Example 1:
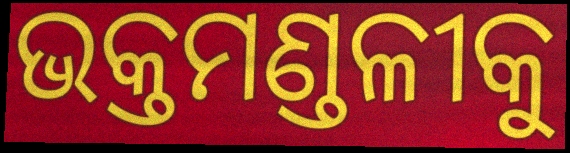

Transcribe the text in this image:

ଭକ୍ତମଣ୍ଡଳୀକୁ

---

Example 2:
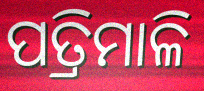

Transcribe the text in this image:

ପତ୍ରିମାଳି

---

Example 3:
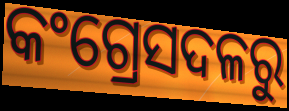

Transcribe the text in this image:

କଂଗ୍ରେସଦଳରୁ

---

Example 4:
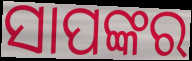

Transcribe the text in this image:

ସାପଙ୍କର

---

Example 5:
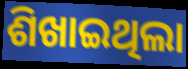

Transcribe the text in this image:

ଶିଖାଇଥିଲା